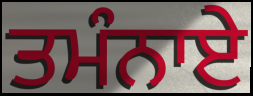
ਤਮੰਨਾਏ